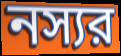
নস্যর